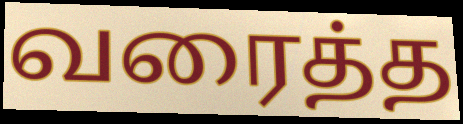
வரைத்த